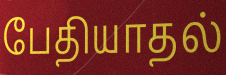
பேதியாதல்